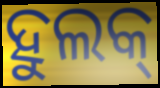
ହୁଲକ୍